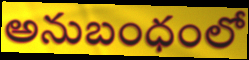
అనుబంధంలో